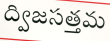
ద్విజసత్తమ